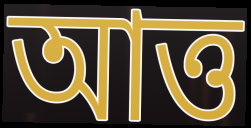
আত্ত